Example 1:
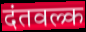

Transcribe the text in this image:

दंतवल्क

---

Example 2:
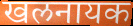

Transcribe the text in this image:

खलनायक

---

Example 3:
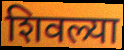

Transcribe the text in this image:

शिवल्या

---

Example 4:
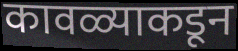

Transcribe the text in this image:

कावळ्याकडून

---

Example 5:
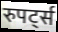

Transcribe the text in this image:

रुपर्ट्स